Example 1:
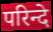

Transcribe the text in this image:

परिन्दे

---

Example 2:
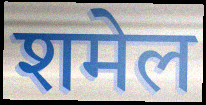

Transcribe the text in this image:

शमेल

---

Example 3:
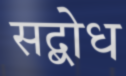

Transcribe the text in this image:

सद्बोध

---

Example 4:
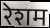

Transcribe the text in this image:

रेशम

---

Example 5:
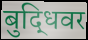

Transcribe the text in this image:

बुद्धिवर